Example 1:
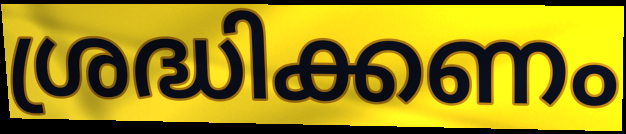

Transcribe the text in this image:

ശ്രദ്ധിക്കണം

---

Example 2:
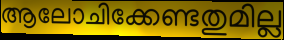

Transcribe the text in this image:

ആലോചിക്കേണ്ടതുമില്ല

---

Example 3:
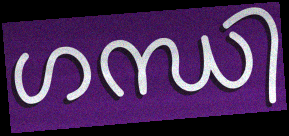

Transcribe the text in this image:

ഗന്ധി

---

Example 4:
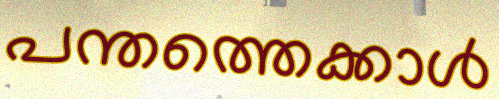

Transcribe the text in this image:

പന്തത്തെക്കാൾ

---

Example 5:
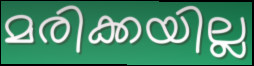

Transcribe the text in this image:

മരിക്കയില്ല